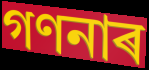
গণনাৰ